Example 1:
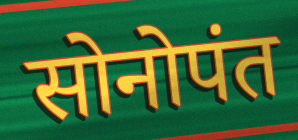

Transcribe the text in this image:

सोनोपंत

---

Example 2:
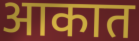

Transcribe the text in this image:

आकात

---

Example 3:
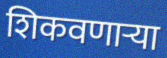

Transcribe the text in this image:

शिकवणाऱ्या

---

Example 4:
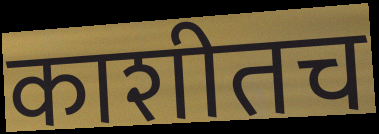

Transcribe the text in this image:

काशीतच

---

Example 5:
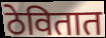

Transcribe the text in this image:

ठेवितात